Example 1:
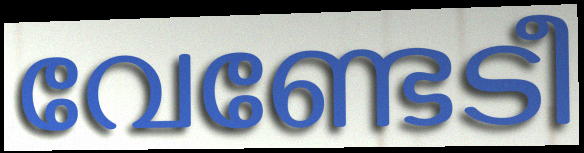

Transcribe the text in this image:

വേണ്ടേടീ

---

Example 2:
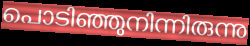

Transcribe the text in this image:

പൊടിഞ്ഞുനിന്നിരുന്നു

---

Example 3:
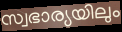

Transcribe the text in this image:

സ്വഭാര്യയിലും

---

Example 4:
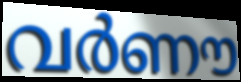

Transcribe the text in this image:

വർണൗ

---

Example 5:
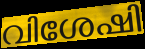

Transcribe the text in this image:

വിശേഷി